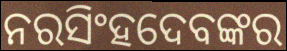
ନରସିଂହଦେବଙ୍କର